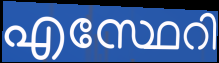
എസ്ഥേറി